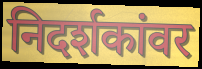
निदर्शकांवर